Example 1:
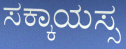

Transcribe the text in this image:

ಸಕ್ಕಾಯಸ್ಸ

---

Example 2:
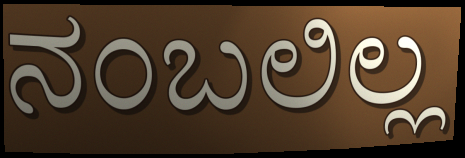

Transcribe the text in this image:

ನಂಬಲಿಲ್ಲ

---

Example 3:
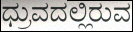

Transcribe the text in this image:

ಧ್ರುವದಲ್ಲಿರುವ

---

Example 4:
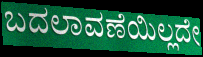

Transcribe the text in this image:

ಬದಲಾವಣೆಯಿಲ್ಲದೇ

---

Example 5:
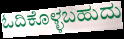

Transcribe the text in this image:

ಓದಿಕೊಳ್ಳಬಹುದು